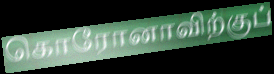
கொரோனாவிற்குப்